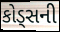
કોડ્સની